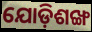
ଯୋଡ଼ିଶଙ୍ଖ